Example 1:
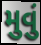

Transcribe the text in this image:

મુવું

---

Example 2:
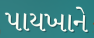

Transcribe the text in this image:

પાયખાને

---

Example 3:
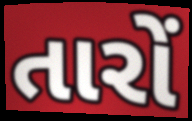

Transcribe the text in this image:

તારોં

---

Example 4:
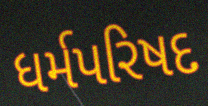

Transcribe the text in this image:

ધર્મપરિષદ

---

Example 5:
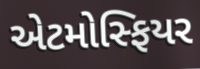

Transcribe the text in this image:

એટમોસ્ફિયર